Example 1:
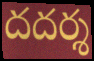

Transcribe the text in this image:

దదర్శ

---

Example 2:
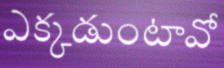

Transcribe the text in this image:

ఎక్కడుంటావో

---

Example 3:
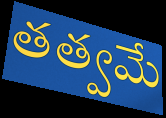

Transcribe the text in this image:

తత్వమే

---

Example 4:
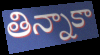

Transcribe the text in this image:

తిన్నాకా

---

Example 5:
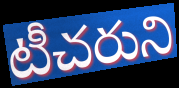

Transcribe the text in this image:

టీచరుని